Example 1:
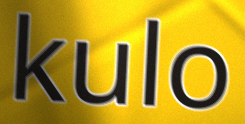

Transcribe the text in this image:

kulo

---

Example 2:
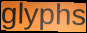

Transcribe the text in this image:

glyphs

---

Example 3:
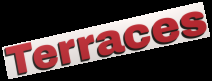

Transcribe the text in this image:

Terraces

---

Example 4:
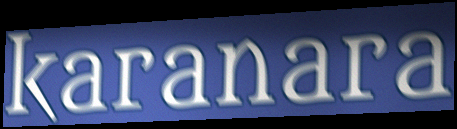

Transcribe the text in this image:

karanara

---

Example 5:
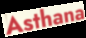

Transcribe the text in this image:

Asthana